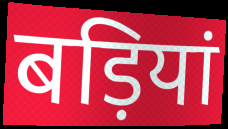
बड़ियां